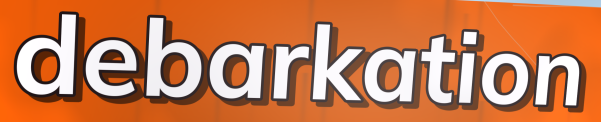
debarkation